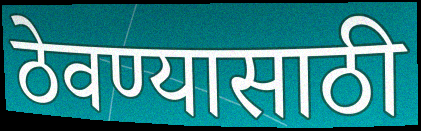
ठेवण्यासाठी